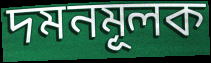
দমনমূলক